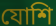
যোশি